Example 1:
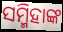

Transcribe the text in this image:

ସମ୍ମିହାଙ୍କ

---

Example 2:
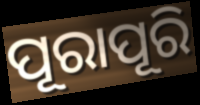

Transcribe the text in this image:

ପୂରାପୂରି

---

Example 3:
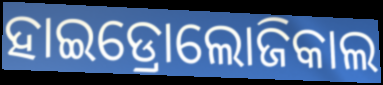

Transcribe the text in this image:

ହାଇଡ୍ରୋଲୋଜିକାଲ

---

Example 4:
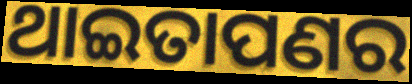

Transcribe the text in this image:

ଥାଇତାପଣର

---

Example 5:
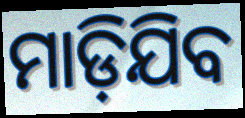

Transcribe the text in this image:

ମାଡ଼ିଯିବ